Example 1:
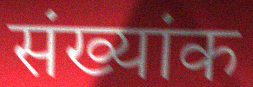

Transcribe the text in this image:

संख्यांक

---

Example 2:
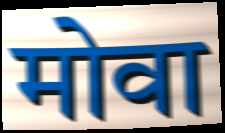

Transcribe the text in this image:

मोवा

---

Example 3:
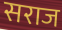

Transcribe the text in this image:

सराज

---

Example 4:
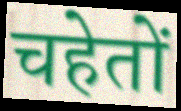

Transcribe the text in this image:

चहेतों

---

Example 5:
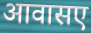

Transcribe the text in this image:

आवासए